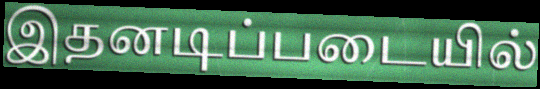
இதனடிப்படையில்